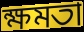
ক্ষমতা